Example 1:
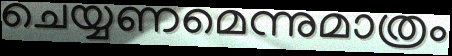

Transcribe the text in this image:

ചെയ്യണമെന്നുമാത്രം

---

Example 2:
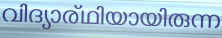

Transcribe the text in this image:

വിദ്യാര്ഥിയായിരുന്ന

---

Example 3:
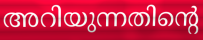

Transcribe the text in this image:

അറിയുന്നതിന്റെ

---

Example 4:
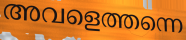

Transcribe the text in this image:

അവളെത്തന്നെ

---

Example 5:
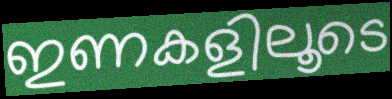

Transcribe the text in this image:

ഇണകളിലൂടെ